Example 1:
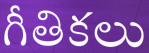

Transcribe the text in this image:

గీతికలు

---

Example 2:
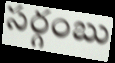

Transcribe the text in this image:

సర్గంబు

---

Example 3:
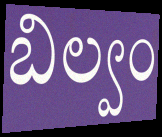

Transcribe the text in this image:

బిల్వం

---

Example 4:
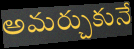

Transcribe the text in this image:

అమర్చుకునే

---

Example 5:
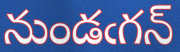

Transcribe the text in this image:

నుండఁగన్